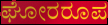
ಘೋರರೂಪ